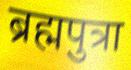
ब्रह्मपुत्रा